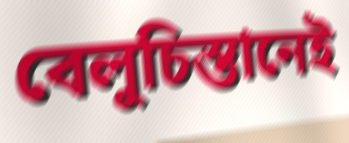
বেলুচিস্তানেই